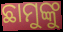
ଛାମୁଙ୍କୁ